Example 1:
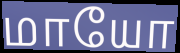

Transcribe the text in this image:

மாயோ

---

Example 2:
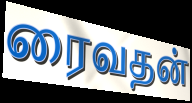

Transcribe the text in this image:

ரைவதன்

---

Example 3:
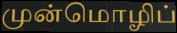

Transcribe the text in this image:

முன்மொழிப்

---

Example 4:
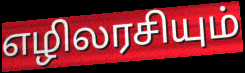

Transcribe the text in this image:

எழிலரசியும்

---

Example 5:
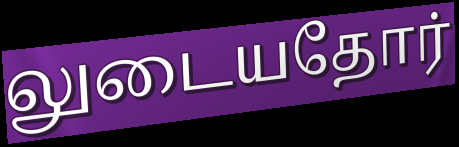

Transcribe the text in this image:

லுடையதோர்